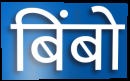
बिंबो